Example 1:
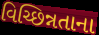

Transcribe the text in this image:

વિચ્છિન્નતાના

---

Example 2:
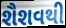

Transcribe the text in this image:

શૈશવથી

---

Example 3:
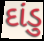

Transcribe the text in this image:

દાંડુ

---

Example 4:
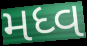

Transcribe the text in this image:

મધ્વ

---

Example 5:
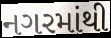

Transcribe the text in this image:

નગરમાંથી